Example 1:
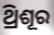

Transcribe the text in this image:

ଥ୍ରିଶୂର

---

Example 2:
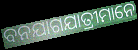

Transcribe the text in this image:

ବନଯାଗଯାତ୍ରୀମାନେ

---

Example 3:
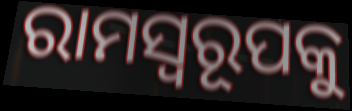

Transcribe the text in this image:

ରାମସ୍ୱରୂପକୁ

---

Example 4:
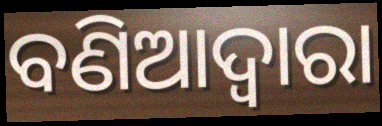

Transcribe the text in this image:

ବଣିଆଦ୍ୱାରା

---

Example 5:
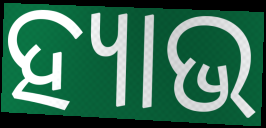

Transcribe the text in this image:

ହ୍ୟାଭ